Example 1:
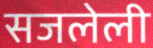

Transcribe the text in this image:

सजलेली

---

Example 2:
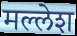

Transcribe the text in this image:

मल्लेश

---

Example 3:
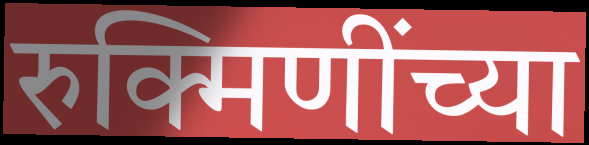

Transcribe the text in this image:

रुक्मिणींच्या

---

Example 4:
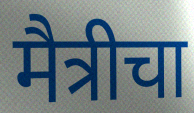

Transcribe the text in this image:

मैत्रीचा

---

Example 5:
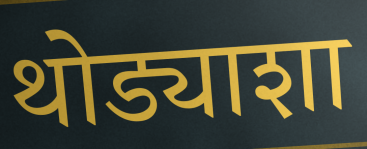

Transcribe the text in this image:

थोड्याशा